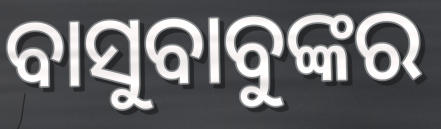
ବାସୁବାବୁଙ୍କର